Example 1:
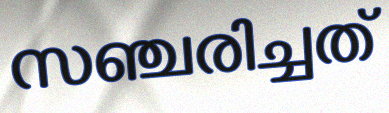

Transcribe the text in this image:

സഞ്ചരിച്ചത്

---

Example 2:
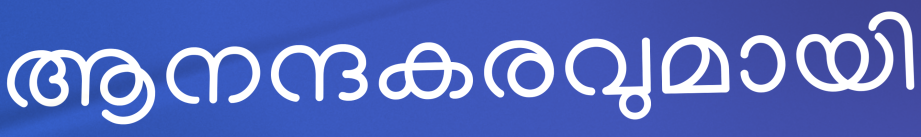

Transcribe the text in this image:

ആനന്ദകരവുമായി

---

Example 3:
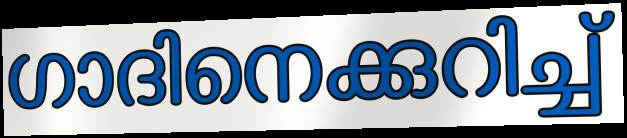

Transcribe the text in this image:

ഗാദിനെക്കുറിച്ച്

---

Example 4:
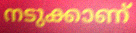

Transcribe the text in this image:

നടുക്കാണ്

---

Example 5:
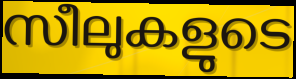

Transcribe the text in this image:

സീലുകളുടെ